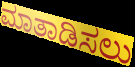
ಮಾತಾಡಿಸಲು